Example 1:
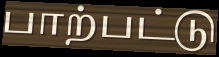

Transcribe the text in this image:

பாற்பட்டு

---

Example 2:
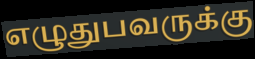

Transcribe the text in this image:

எழுதுபவருக்கு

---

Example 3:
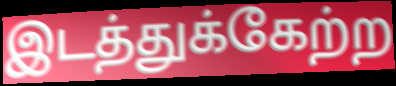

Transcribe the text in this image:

இடத்துக்கேற்ற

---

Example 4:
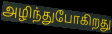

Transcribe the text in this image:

அழிந்துபோகிறது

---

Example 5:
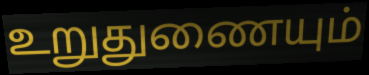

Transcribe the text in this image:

உறுதுணையும்